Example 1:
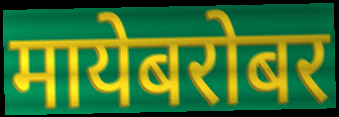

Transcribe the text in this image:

मायेबरोबर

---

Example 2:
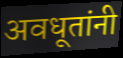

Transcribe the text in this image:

अवधूतांनी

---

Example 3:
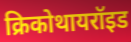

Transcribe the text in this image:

क्रिकोथायरॉइड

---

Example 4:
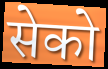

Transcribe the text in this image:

सेको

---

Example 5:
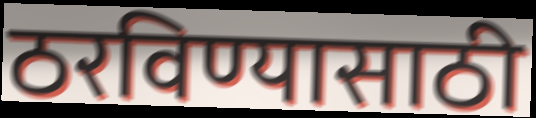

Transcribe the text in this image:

ठरविण्यासाठी